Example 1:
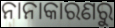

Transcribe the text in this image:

ନାନାକାରଣରୁ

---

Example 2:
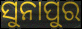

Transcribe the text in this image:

ସୁନାପୁର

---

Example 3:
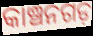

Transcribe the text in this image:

କାଞ୍ଚନଗଡ଼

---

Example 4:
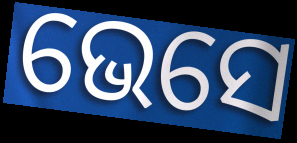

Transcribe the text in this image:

ଭେସେ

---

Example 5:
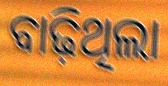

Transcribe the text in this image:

ବାଢ଼ିଥିଲା